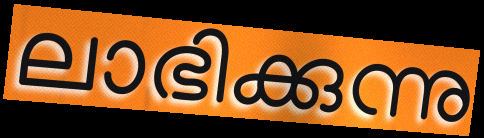
ലാഭിക്കുന്നു